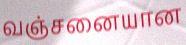
வஞ்சனையான